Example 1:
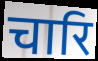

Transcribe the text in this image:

चारि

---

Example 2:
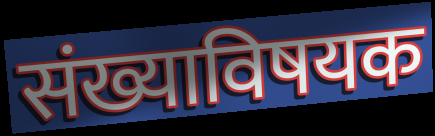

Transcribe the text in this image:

संख्याविषयक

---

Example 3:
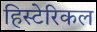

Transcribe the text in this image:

हिस्टेरिकल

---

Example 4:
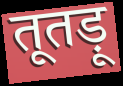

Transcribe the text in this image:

तूतड़ू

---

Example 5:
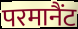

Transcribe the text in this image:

परमानैंट